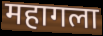
महागला